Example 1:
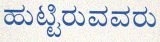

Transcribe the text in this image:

ಹುಟ್ಟಿರುವವರು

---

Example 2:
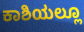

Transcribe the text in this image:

ಕಾಶಿಯಲ್ಲೂ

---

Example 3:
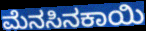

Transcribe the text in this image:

ಮೆನಸಿನಕಾಯಿ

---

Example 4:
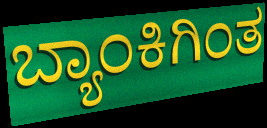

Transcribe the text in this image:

ಬ್ಯಾಂಕಿಗಿಂತ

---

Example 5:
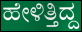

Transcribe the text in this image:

ಹೇಳಿತ್ತಿದ್ದ